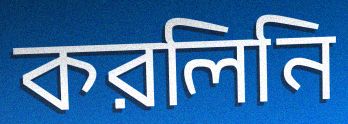
করলিনি